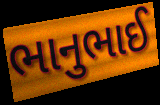
ભાનુભાઈ